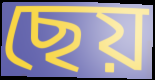
ছেয়